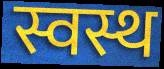
स्वस्थ